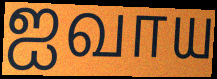
ஐவாய